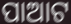
ପାଆଟ